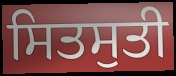
ਸਿਤਸੁਤੀ